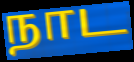
நாட